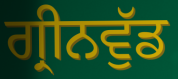
ਗ੍ਰੀਨਵੁੱਡ